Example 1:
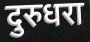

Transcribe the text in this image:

दुरुधरा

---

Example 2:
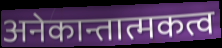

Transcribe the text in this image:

अनेकान्तात्मकत्व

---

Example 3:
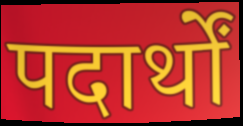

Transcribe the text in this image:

पदार्थों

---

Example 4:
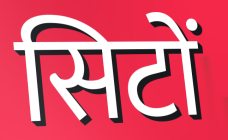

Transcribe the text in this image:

सिटों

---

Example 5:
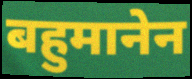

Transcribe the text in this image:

बहुमानेन